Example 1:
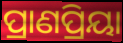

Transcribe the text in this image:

ପ୍ରାଣପ୍ରିୟା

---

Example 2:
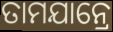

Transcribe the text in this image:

ତାମଯାନ୍ରେ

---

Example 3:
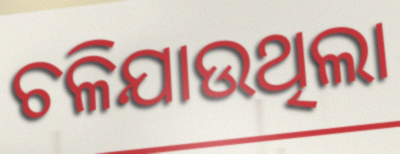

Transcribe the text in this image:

ଚଳିଯାଉଥିଲା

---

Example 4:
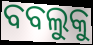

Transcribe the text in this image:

ବବଲୁକୁ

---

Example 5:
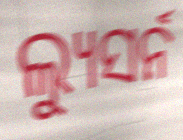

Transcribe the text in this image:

ଲ୍ୟୁସର୍ନ